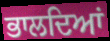
ਭਾਲਦਿਆਂ